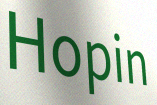
Hopin